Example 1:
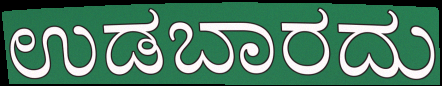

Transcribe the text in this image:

ಉಡಬಾರದು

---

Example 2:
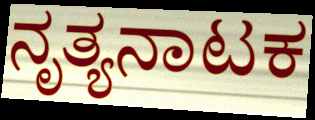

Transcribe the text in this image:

ನೃತ್ಯನಾಟಕ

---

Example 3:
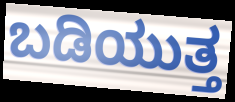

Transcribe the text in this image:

ಬಡಿಯುತ್ತ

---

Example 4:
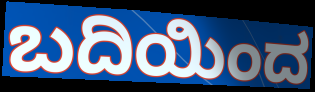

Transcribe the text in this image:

ಬದಿಯಿಂದ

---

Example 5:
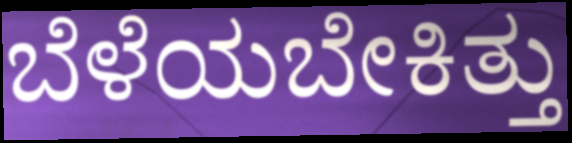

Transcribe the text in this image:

ಬೆಳೆಯಬೇಕಿತ್ತು